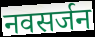
नवसर्जन